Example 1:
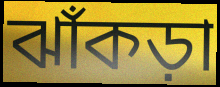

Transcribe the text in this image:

ঝাঁকড়া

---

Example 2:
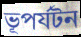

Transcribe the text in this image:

ভূপর্যটন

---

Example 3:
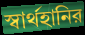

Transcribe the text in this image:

স্বার্থহানির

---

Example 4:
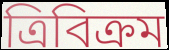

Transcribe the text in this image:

ত্রিবিক্রম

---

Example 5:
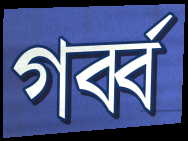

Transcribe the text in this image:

গর্ব্ব